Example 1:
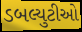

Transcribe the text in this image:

ડબલ્યુટીઓ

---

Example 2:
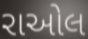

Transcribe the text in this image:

રાઓલ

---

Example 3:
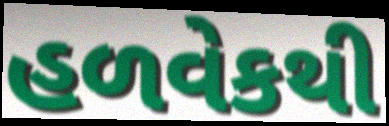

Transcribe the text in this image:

હળવેકથી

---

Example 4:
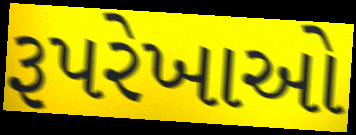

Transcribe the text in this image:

રૂપરેખાઓ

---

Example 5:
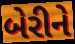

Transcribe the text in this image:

બેરીને